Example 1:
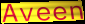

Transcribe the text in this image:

Aveen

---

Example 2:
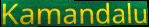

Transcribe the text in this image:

Kamandalu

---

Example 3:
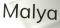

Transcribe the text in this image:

Malya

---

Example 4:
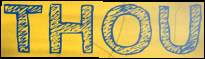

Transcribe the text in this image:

THOU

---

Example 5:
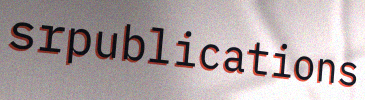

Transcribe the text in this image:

srpublications